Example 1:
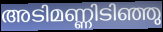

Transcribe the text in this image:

അടിമണ്ണിടിഞ്ഞു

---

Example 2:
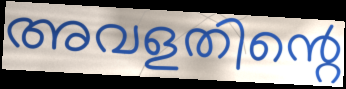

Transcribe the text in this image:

അവളതിന്റെ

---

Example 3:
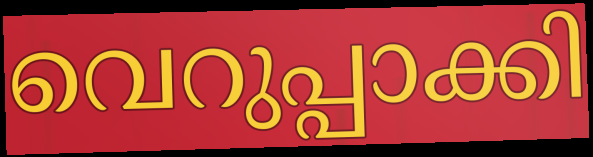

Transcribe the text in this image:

വെറുപ്പാക്കി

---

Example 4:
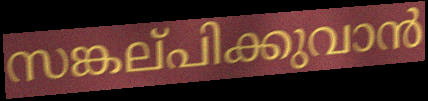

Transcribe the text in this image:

സങ്കല്‌പിക്കുവാൻ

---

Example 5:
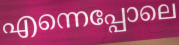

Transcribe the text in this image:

എന്നെപ്പോലെ